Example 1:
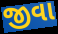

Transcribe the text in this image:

જીવા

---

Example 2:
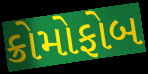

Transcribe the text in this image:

ક્રોમોફોબ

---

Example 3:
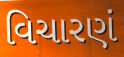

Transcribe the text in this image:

વિચારણં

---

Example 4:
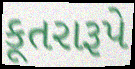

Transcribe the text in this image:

કૂતરારૂપે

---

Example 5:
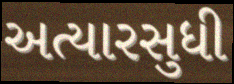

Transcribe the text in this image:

અત્યારસુધી